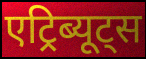
एट्रिब्यूट्स